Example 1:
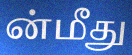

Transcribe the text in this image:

ன்மீது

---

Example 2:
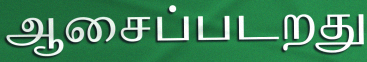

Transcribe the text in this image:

ஆசைப்படறது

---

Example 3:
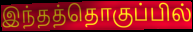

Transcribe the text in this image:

இந்தத்தொகுப்பில்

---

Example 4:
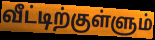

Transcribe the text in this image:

வீட்டிற்குள்ளும்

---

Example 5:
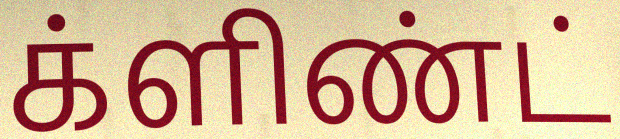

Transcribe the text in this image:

க்ளிண்ட்